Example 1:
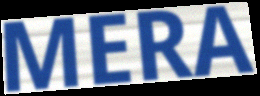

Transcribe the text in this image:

MERA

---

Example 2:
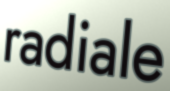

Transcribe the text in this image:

radiale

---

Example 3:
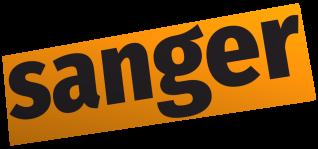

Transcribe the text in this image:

sanger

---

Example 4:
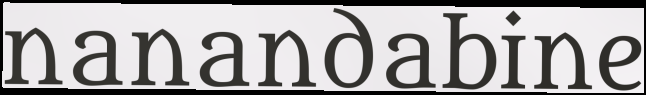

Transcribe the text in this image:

nanandabine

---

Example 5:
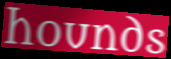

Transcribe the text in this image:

hounds